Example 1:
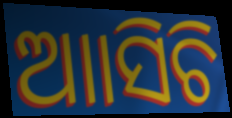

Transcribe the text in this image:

ଆାସିଚି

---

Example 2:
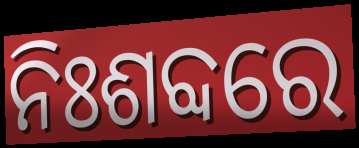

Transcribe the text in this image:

ନିଃଶବ୍ଦରେ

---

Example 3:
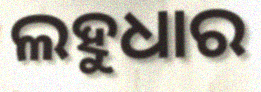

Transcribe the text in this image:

ଲହୁଧାର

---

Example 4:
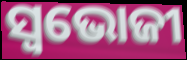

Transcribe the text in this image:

ସ୍ବଭୋଜୀ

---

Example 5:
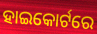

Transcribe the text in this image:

ହାଇକୋର୍ଟରେ